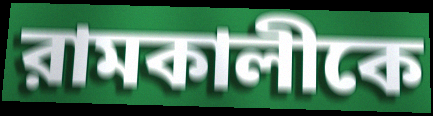
রামকালীকে